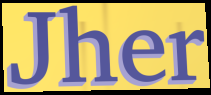
Jher